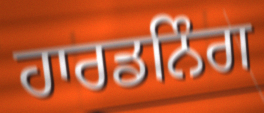
ਹਾਰਡਨਿੰਗ